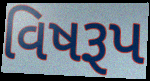
વિષરૂપ